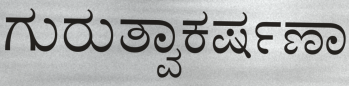
ಗುರುತ್ವಾಕರ್ಷಣಾ